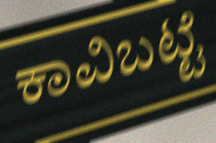
ಕಾವಿಬಟ್ಟೆ